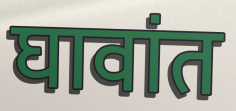
घावांत